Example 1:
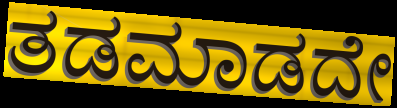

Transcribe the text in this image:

ತಡಮಾಡದೇ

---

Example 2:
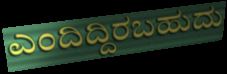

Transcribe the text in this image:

ಎಂದಿದ್ದಿರಬಹುದು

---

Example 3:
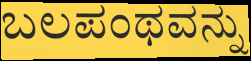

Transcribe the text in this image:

ಬಲಪಂಥವನ್ನು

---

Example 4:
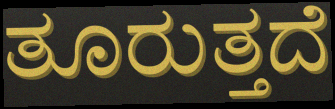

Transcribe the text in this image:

ತೂರುತ್ತದೆ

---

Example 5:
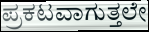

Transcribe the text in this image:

ಪ್ರಕಟವಾಗುತ್ತಲೇ